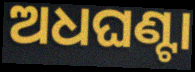
ଅଧଘଣ୍ଟା